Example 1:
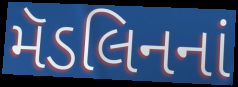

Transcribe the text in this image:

મૅડલિનનાં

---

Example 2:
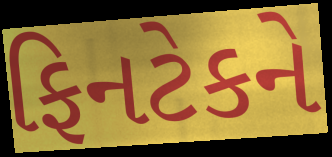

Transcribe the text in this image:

ફિનટેકને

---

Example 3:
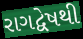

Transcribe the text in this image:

રાગદ્વેષથી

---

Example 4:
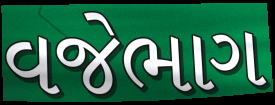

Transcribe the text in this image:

વજેભાગ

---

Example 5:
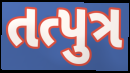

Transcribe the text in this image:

તત્પુત્ર